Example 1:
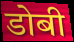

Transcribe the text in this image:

डोबी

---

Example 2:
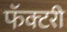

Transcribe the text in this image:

फॅक्‍टरी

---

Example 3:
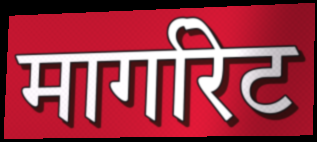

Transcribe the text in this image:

मार्गारेट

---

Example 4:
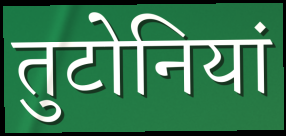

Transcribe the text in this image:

तुटोनियां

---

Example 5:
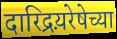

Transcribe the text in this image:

दारिद्रय़रेषेच्या